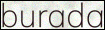
burada